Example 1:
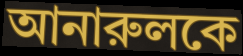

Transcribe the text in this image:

আনারুলকে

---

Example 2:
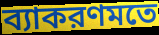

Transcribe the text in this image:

ব্যাকরণমতে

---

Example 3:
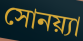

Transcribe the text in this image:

সোনয়্যা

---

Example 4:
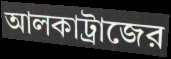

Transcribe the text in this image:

আলকাট্রাজের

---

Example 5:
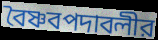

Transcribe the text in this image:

বৈষ্ণবপদাবলীর